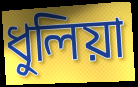
ধুলিয়া